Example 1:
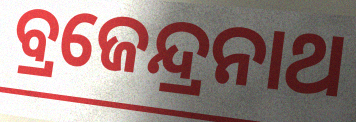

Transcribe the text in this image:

ବ୍ରଜେନ୍ଦ୍ରନାଥ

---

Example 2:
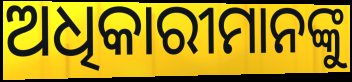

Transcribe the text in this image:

ଅଧିକାରୀମାନଙ୍କୁ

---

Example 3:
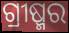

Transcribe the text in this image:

ଗ୍ରୀଷ୍ମର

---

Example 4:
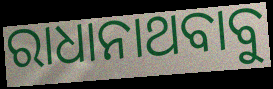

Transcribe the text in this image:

ରାଧାନାଥବାବୁ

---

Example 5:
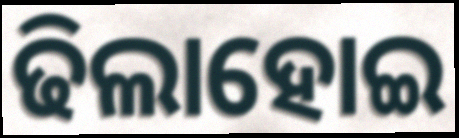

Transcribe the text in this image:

ଢିଲାହୋଇ